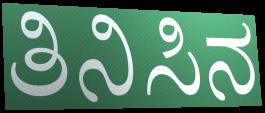
ತಿನಿಸಿನ